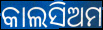
କାଲସିଅମ